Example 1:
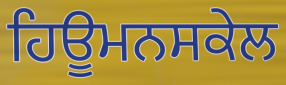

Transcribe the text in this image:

ਹਿਊਮਨਸਕੇਲ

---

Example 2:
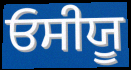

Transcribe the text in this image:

ਓਸੀਯੂ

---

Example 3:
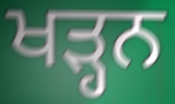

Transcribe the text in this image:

ਖੜ੍ਹਨ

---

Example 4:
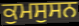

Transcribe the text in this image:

ਕੁਮਸੁਸਨ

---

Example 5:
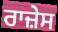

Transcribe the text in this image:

ਰਾਜ਼ੇਸ